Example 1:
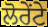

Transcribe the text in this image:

ਲੋਰੇਂਟੇ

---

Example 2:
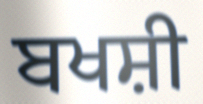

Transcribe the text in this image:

ਬਖਸ਼ੀ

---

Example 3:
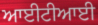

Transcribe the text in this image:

ਆਈਟੀਆਈ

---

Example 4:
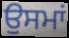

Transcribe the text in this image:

ਉਸਮਾਂ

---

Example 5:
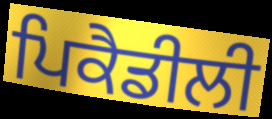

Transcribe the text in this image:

ਪਿਕੈਡੀਲੀ